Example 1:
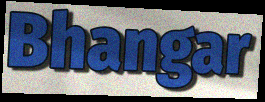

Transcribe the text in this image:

Bhangar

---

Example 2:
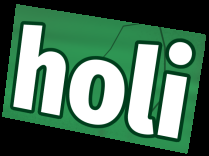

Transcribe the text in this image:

holi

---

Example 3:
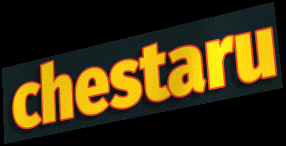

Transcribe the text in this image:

chestaru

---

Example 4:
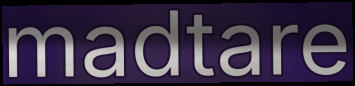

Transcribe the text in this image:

madtare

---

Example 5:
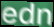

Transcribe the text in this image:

edn